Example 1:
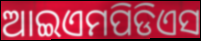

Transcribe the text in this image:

ଆଇଏମପିଡିଏସ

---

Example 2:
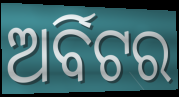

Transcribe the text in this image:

ଅର୍ବିଟର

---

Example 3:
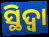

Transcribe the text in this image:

ସ୍ଥିଦ୍ଵା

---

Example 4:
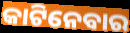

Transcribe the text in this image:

କାଟିନେବାର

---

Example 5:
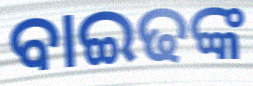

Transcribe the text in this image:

ବାଇଢଙ୍କ